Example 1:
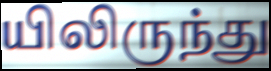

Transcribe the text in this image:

யிலிருந்து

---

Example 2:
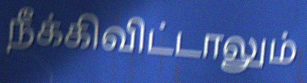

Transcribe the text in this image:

நீக்கிவிட்டாலும்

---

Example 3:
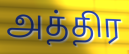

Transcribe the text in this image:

அத்திர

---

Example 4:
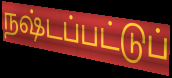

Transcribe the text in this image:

நஷ்டப்பட்டுப்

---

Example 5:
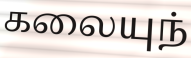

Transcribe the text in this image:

கலையுந்